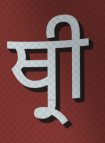
ਥ੍ਰੀ